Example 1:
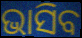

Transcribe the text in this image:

ଭାସିବ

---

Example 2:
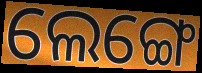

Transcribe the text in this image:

ଲେଙ୍ଗେ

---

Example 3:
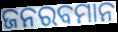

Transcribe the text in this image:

ଜନରବମାନ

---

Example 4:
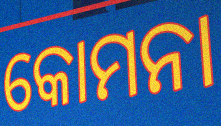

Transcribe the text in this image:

କୋମନା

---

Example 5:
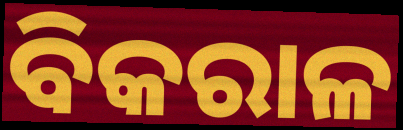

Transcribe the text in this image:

ବିକରାଳ